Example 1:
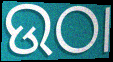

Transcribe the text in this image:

ଉଠା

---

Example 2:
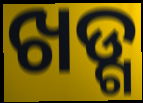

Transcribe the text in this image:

ଖଡ୍ଗ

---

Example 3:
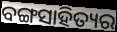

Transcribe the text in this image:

ବଙ୍ଗସାହିତ୍ୟର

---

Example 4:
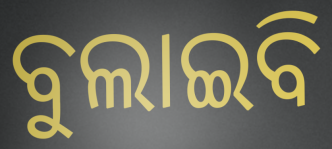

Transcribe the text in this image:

ବୁଲାଇବି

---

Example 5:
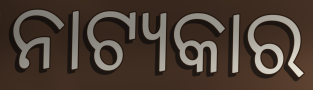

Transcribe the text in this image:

ନାଟ୍ଯକାର